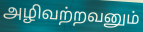
அழிவற்றவனும்